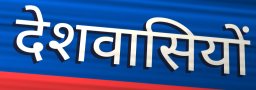
देशवासियों